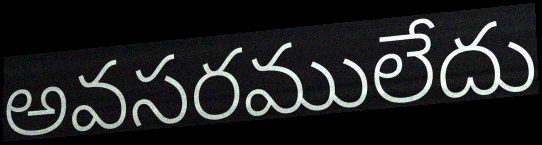
అవసరములేదు